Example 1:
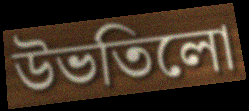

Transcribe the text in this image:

উভতিলো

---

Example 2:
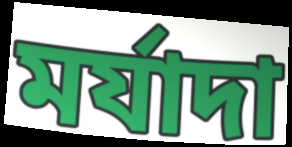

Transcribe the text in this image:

মৰ্যাদা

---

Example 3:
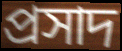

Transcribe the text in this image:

প্ৰসাদ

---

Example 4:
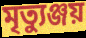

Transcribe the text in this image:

মৃত্যুঞ্জয়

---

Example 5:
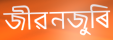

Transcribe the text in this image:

জীৱনজুৰি